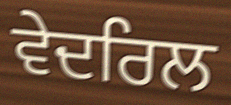
ਵੇਦਰਿਲ